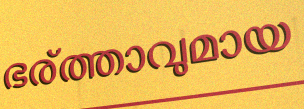
ഭര്ത്താവുമായ